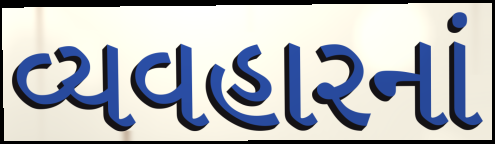
વ્યવહારનાં